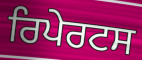
ਰਿਪੇਰਟਸ